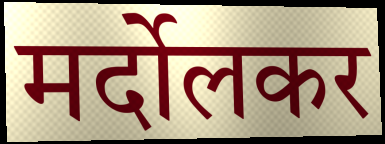
मर्दोलकर